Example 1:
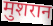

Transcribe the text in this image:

मुशरान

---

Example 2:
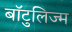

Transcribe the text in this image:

बॉटुलिज्म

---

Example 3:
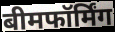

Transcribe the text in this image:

बीमफॉर्मिंग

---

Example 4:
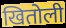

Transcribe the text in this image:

खितोली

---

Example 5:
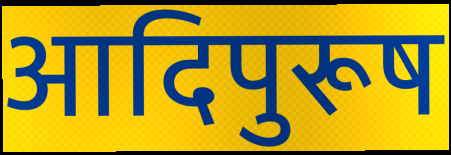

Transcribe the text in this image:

आदिपुरूष